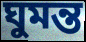
ঘুমন্ত